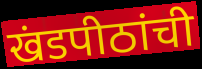
खंडपीठांची